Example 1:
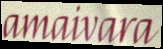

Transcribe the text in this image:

amaivara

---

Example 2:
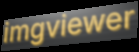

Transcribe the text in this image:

imgviewer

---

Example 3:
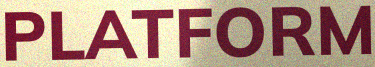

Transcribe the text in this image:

PLATFORM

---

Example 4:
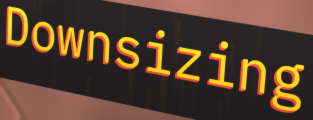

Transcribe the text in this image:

Downsizing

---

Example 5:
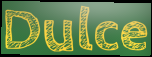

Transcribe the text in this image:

Dulce